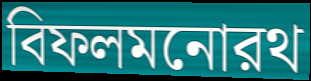
বিফলমনোরথ